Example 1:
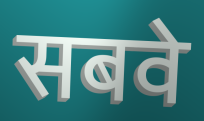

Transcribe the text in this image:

सबवे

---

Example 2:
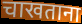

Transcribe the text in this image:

चाखताना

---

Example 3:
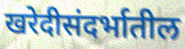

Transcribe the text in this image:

खरेदीसंदर्भातील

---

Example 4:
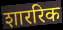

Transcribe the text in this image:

शाररिक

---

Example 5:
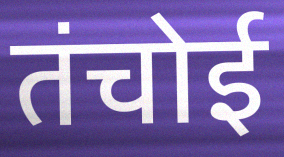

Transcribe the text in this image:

तंचोई